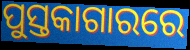
ପୁସ୍ତକାଗାରରେ